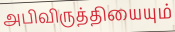
அபிவிருத்தியையும்